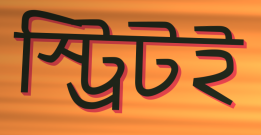
স্ট্রিটই